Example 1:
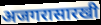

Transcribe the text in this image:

अजगरासारखी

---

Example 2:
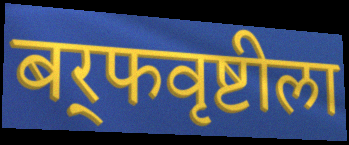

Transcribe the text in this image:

बर्फवृष्टीला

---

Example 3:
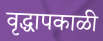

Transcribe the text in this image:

वृद्धापकाळी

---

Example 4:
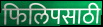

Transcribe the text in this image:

फिलिपसाठी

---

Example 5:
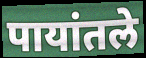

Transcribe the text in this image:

पायांतले